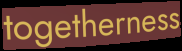
togetherness